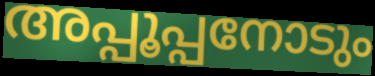
അപ്പൂപ്പനോടും